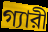
গ্যারী